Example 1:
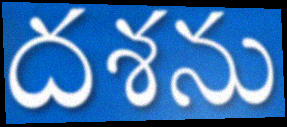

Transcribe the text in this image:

దశను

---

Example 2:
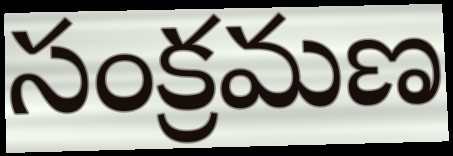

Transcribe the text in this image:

సంక్రమణ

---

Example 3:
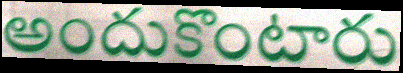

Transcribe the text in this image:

అందుకొంటారు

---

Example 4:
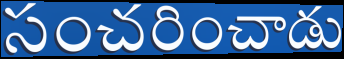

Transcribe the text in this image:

సంచరించాడు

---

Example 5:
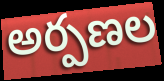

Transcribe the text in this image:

అర్పణల